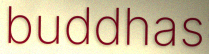
buddhas